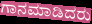
ಗಾನಮಾಡಿದರು